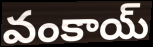
వంకాయ్